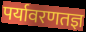
पर्यावरणतज्ञ